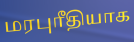
மரபுரீதியாக